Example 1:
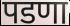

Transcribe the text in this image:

पडणा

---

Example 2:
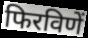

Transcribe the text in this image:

फिरविणें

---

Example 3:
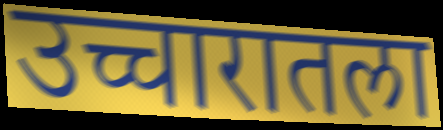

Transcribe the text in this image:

उच्चारातला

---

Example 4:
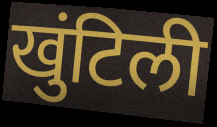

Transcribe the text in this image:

खुंटिली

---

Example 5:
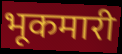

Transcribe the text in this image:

भूकमारी